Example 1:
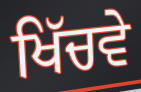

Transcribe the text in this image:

ਖਿੱਚਵੇ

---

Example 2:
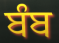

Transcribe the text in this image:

ਬੰਬ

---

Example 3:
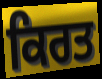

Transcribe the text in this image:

ਕਿਰਤ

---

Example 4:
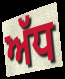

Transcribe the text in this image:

ਅੱਧ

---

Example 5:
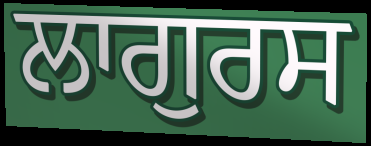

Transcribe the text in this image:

ਲਾਗੁਰਸ